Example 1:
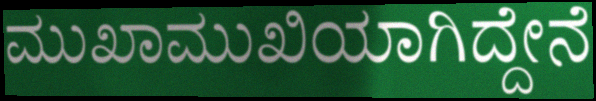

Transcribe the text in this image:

ಮುಖಾಮುಖಿಯಾಗಿದ್ದೇನೆ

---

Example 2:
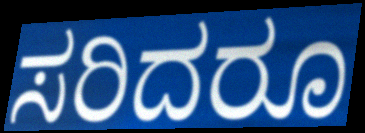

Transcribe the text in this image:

ಸರಿದರೂ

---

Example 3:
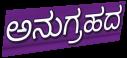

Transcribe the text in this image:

ಅನುಗ್ರಹದ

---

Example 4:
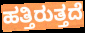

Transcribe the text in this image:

ಹತ್ತಿರುತ್ತದೆ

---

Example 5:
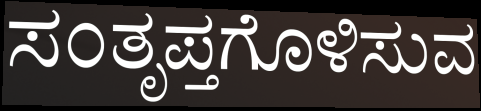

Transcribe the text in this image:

ಸಂತೃಪ್ತಗೊಳಿಸುವ